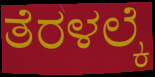
ತೆರಳಲ್ಕೆ